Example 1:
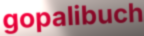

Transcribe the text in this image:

gopalibuch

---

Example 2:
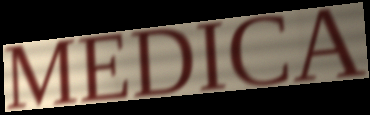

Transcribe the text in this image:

MEDICA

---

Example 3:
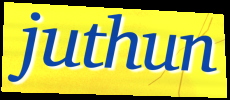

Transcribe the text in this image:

juthun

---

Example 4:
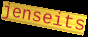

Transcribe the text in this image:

jenseits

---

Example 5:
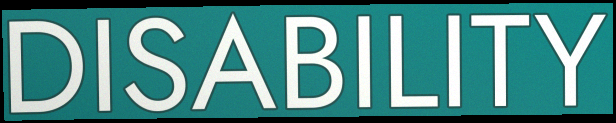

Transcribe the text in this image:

DISABILITY